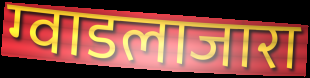
ग्वाडलाजारा